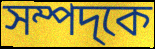
সম্পদ্‌কে